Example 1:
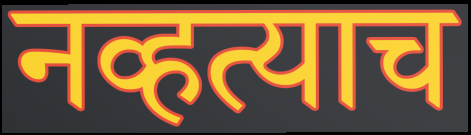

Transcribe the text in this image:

नव्हत्याच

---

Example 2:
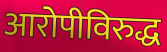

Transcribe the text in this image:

आरोपीविरुद्ध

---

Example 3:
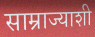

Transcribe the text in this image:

साम्राज्याशी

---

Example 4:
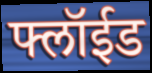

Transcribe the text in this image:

फ्लॉईड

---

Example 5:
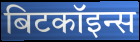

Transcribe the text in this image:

बिटकॉइन्स